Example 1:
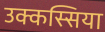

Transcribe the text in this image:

उक्कस्सिया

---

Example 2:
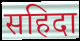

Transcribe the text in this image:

सहिदा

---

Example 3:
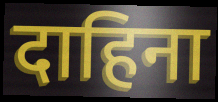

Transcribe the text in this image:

दाहिना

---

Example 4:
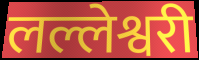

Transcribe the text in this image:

लल्लेश्वरी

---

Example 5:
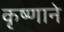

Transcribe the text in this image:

कृष्णाने